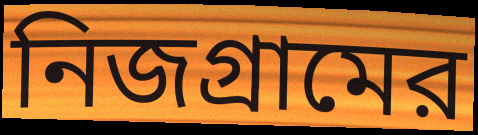
নিজগ্রামের